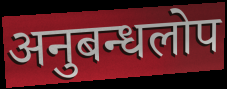
अनुबन्धलोप